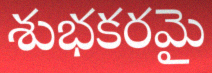
శుభకరమై